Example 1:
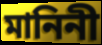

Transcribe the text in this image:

মানিনী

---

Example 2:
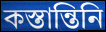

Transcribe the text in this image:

কস্তান্তিনি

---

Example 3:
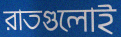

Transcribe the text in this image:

রাতগুলোই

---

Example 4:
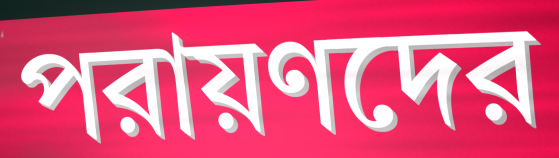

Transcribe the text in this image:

পরায়ণদের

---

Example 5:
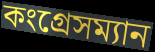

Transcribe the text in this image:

কংগ্রেসম্যান